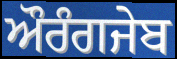
ਔਰੰਗਜੇਬ